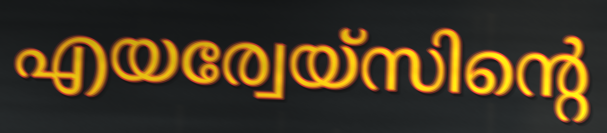
എയര്വേയ്സിന്റെ